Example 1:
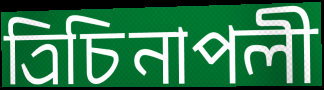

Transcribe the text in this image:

ত্রিচিনাপলী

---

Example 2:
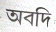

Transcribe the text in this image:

অবদি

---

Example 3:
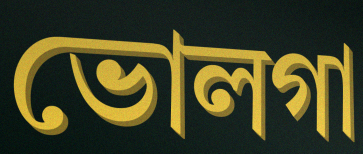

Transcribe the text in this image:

ভোলগা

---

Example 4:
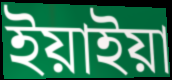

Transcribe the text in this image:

ইয়াইয়া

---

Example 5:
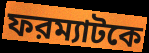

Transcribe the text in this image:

ফরম্যাটকে